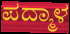
ಪದ್ಮಾಳ